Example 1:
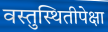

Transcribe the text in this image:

वस्तुस्थितीपेक्षा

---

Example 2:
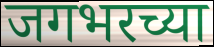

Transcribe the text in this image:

जगभरच्या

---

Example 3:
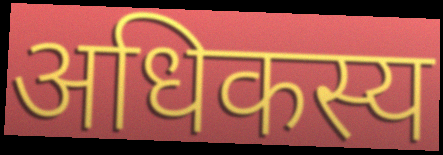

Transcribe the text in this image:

अधिकस्य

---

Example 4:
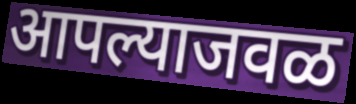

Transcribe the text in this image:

आपल्याजवळ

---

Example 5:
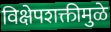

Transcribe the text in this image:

विक्षेपशक्तीमुळे